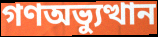
গণঅভ্যুত্থান